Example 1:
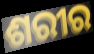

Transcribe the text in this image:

ଶରୀର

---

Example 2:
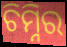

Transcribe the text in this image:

ଚିମ୍ନିର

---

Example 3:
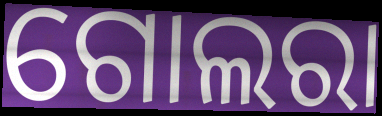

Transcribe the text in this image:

ଗୋଲରା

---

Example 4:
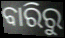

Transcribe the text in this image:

ବାରିରୁ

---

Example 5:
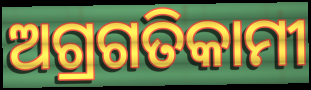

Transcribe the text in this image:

ଅଗ୍ରଗତିକାମୀ